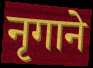
नृगाने